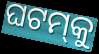
ଘଟମ୍‌କୁ